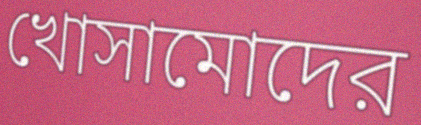
খোসামোদের